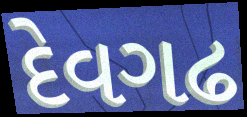
દેવગઢ